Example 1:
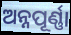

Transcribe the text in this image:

ଅନ୍ନପୂର୍ଣ୍ଣା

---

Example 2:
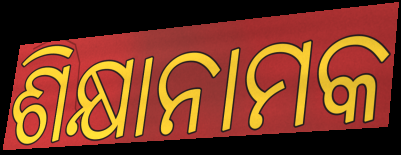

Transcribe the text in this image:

ଶିକ୍ଷାନାମକ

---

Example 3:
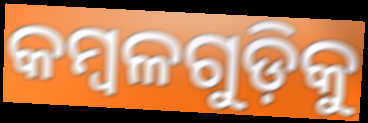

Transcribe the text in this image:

କମ୍ବଳଗୁଡ଼ିକୁ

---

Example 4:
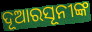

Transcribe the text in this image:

ଦୂଆରସୂନୀଙ୍କ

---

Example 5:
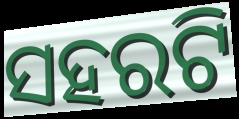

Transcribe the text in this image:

ସହରଟି